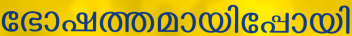
ഭോഷത്തമായിപ്പോയി